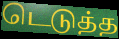
டெடுத்த